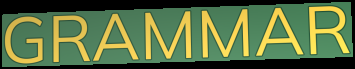
GRAMMAR